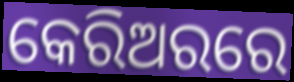
କେରିଅରରେ